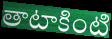
తాటాకింటి